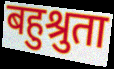
बहुश्रुता